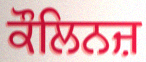
ਕੌਲਿਨਜ਼